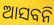
ଆସବନି